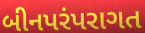
બીનપરંપરાગત